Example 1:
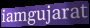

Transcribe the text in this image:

iamgujarat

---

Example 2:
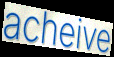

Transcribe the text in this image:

acheive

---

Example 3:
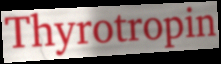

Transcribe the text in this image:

Thyrotropin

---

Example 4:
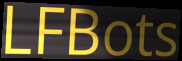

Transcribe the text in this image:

LFBots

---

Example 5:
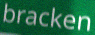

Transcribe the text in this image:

bracken